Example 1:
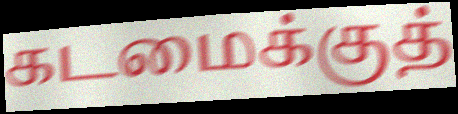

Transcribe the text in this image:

கடமைக்குத்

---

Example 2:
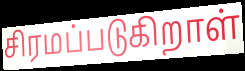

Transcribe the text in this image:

சிரமப்படுகிறாள்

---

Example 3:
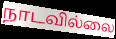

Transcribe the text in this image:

நாடவில்லை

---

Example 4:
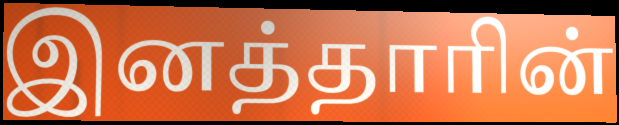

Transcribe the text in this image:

இனத்தாரின்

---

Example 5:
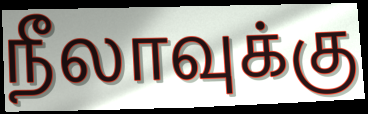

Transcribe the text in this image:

நீலாவுக்கு